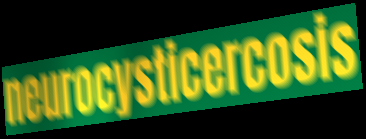
neurocysticercosis